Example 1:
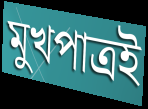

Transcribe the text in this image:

মুখপাত্রই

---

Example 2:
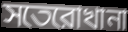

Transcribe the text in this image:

সতেরোখানা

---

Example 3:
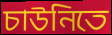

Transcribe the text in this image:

চাউনিতে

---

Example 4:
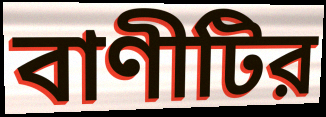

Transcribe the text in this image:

বাণীটির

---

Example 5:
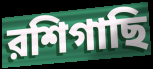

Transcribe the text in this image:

রশিগাছি